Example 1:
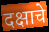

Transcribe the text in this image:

दक्षाचे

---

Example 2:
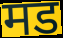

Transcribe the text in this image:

मड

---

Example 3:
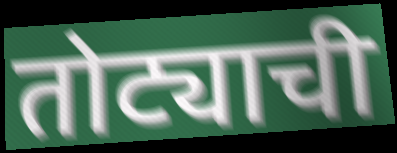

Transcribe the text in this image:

तोट्याची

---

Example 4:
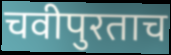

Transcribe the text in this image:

चवीपुरताच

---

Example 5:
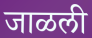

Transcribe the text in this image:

जाळली